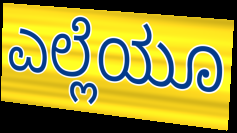
ಎಲ್ಲೆಯೂ